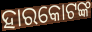
ହାରକୋଟଙ୍କ